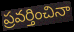
ప్రవర్తించినా